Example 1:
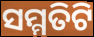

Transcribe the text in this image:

ସମ୍ମତିଟି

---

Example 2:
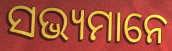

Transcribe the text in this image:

ସଭ୍ୟମାନେ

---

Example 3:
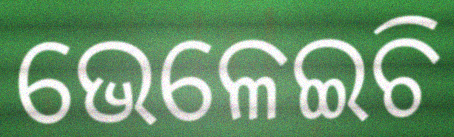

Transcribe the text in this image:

ଭେଳେଇଚି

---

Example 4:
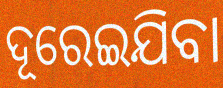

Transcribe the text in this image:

ଦୂରେଇଯିବା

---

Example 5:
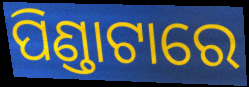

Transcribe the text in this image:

ପିଣ୍ଡାଟାରେ